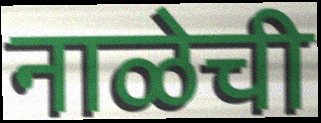
नाळेची